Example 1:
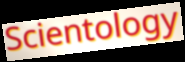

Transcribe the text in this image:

Scientology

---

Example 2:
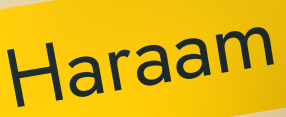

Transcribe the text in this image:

Haraam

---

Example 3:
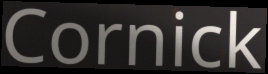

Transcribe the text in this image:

Cornick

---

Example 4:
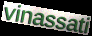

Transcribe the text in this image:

vinassati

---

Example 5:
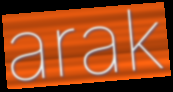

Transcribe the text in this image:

arak